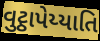
વુટ્ઠાપેય્યાતિ